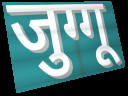
जुग्गू